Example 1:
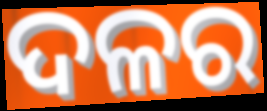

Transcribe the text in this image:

ଦଳର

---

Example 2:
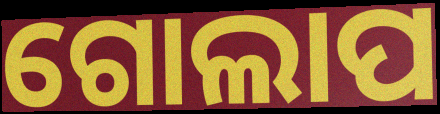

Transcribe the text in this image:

ଗୋଲାପ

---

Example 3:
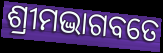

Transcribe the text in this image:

ଶ୍ରୀମଦ୍ଭାଗବତେ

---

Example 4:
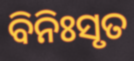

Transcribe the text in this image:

ବିନିଃସୃତ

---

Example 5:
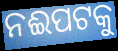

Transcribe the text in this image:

ନଈପଟକୁ